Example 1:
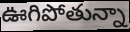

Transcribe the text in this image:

ఊగిపోతున్నా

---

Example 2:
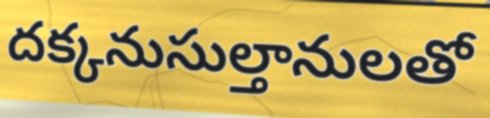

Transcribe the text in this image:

దక్కనుసుల్తానులతో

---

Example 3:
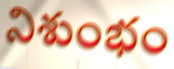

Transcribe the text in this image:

నిశుంభం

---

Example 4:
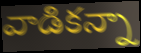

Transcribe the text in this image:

వాడికన్నా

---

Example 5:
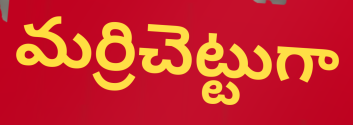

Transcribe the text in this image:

మర్రిచెట్టుగా